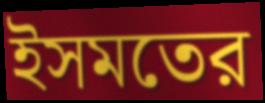
ইসমতের